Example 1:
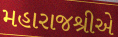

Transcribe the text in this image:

મહારાજશ્રીએ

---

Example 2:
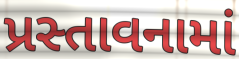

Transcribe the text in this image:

પ્રસ્તાવનામાં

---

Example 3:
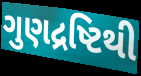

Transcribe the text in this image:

ગુણદ્રષ્ટિથી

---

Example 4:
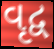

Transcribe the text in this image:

વૃદ્વ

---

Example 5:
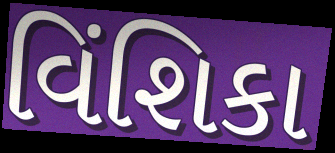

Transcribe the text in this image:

વિંશિકા